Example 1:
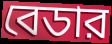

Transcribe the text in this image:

বেডার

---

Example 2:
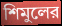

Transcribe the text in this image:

শিমুলের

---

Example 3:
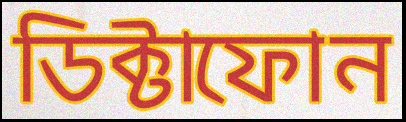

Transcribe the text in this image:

ডিক্টাফোন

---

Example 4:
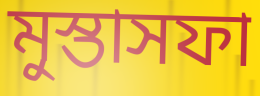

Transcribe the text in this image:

মুস্তাসফা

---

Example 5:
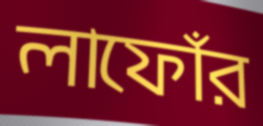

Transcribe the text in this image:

লাফোঁর